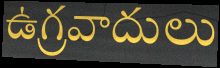
ఉగ్రవాదులు